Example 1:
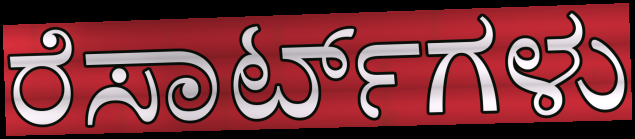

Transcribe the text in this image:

ರೆಸಾರ್ಟ್‌ಗಳು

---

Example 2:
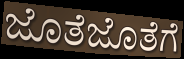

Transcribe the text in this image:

ಜೊತೆಜೊತೆಗೆ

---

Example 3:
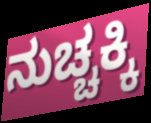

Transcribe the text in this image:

ನುಚ್ಚಕ್ಕಿ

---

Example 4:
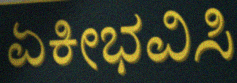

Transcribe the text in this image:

ಏಕೀಭವಿಸಿ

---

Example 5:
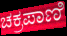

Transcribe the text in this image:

ಚಕ್ರಪಾಣಿ